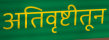
अतिवृष्टीतून